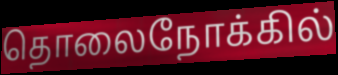
தொலைநோக்கில்